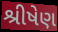
શ્રીષેણ